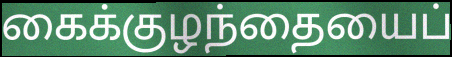
கைக்குழந்தையைப்